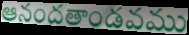
ఆనందతాండవము